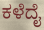
ಕಳೆದೈ